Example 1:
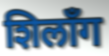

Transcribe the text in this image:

शिलाँग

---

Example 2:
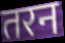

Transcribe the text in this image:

तरन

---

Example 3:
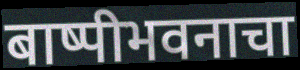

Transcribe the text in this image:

बाष्पीभवनाचा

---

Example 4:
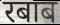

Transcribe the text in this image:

रबाब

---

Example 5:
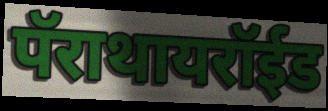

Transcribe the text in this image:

पॅराथायरॉईड